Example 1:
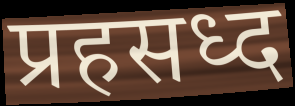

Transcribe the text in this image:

प्रहसध्द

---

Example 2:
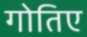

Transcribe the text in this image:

गोतिए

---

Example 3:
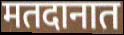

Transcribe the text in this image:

मतदानात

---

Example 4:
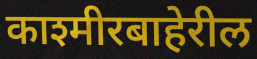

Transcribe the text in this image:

काश्मीरबाहेरील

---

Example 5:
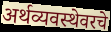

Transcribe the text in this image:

अर्थव्यवस्थेवरचे